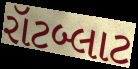
રૉટબ્લાટ